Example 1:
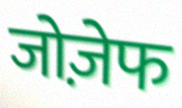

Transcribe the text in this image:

जोज़ेफ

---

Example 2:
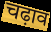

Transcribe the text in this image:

चढ़ाव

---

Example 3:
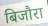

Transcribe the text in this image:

बिजौरा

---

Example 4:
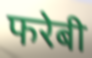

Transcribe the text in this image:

फरेबी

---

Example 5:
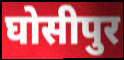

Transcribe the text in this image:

घोसीपुर